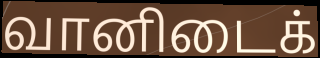
வானிடைக்